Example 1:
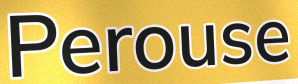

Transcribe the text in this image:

Perouse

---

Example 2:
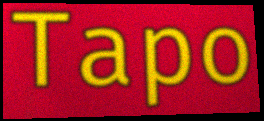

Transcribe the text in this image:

Tapo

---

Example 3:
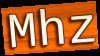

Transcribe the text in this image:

Mhz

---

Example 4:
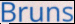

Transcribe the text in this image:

Bruns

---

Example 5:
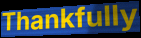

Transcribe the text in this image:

Thankfully